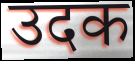
उदक